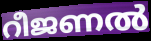
റീജണൽ